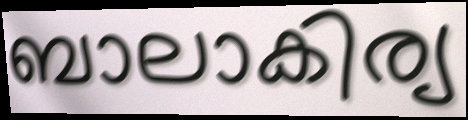
ബാലാകിര്യ